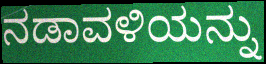
ನಡಾವಳಿಯನ್ನು